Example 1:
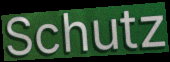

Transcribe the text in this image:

Schutz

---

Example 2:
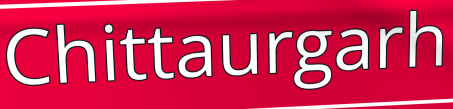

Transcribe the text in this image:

Chittaurgarh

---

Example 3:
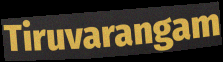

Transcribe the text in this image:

Tiruvarangam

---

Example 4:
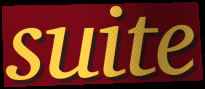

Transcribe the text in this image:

suite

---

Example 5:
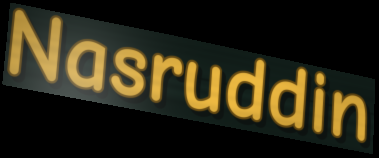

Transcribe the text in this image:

Nasruddin